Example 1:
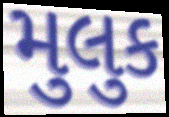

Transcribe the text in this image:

મુલુક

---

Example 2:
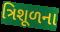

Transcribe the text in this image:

ત્રિશૂળના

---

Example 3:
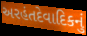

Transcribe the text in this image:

અરહંતદેવાદિકનું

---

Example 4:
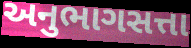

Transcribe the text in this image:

અનુભાગસત્તા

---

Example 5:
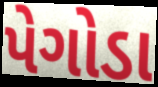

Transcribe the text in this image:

પેગોડા